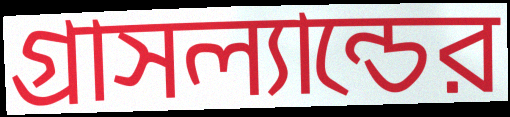
গ্রাসল্যান্ডের